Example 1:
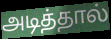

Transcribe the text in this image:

அடித்தால்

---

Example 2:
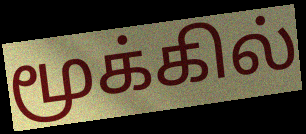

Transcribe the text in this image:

மூக்கில்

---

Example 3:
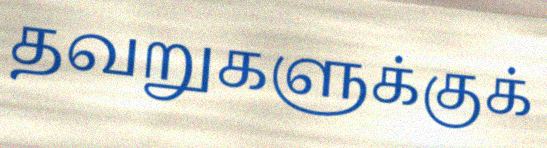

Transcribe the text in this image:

தவறுகளுக்குக்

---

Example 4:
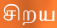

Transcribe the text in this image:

சிறய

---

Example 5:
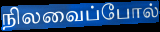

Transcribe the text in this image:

நிலவைப்போல்